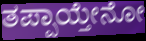
ತಪ್ಪಾಯ್ತೇನೋ